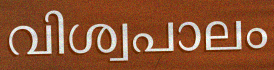
വിശ്വപാലം